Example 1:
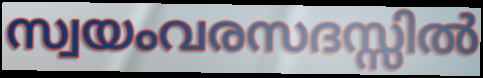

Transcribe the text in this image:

സ്വയംവരസദസ്സിൽ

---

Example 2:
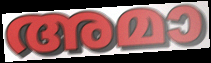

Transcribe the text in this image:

അമാ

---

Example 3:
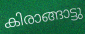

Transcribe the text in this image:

കിരാങ്ങാട്ടു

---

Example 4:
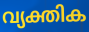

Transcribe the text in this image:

വ്യക്തിക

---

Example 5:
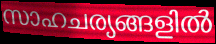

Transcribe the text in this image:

സാഹചര്യങ്ങളിൽ